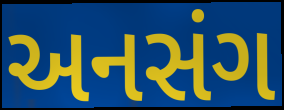
અનસંગ